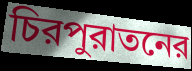
চিরপুরাতনের